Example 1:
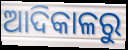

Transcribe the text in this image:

ଆଦିକାଳରୁ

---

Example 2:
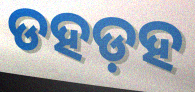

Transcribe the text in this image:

ଡହଡ଼ହ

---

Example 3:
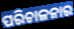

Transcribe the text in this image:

ପରିଚାଳନାର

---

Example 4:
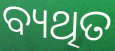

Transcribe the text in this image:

ବ୍ୟଥିତ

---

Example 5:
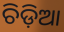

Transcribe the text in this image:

ଚିଡ଼ିଆ